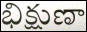
భిక్షుణా